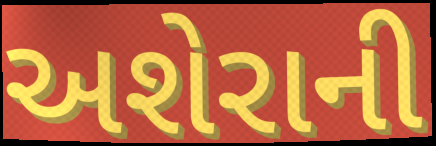
અશેરાની